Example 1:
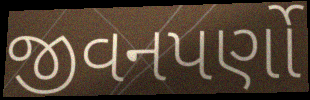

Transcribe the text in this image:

જીવનપર્ણો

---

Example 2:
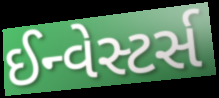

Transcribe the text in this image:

ઈન્વેસ્ટર્સ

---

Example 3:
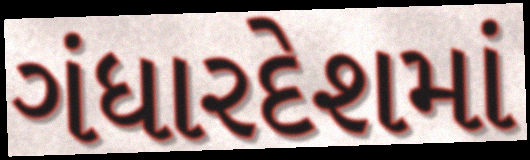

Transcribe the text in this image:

ગંધારદેશમાં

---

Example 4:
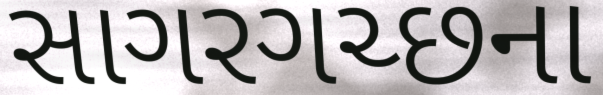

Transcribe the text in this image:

સાગરગચ્છના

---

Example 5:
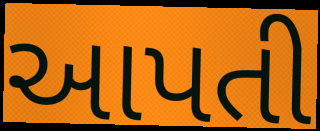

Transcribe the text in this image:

આપતી